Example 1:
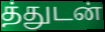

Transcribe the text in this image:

த்துடன்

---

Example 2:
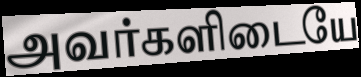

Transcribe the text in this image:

அவர்களிடையே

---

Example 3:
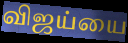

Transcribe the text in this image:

விஜய்யை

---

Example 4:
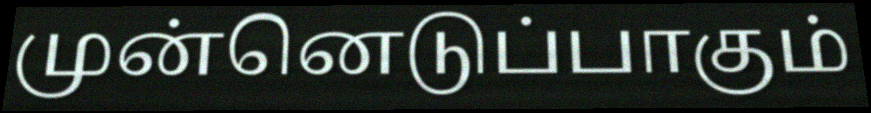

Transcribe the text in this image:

முன்னெடுப்பாகும்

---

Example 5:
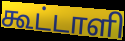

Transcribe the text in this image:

கூட்டாளி